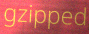
gzipped